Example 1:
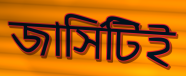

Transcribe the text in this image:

জার্সিটিই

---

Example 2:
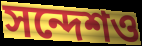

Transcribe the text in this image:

সন্দেশও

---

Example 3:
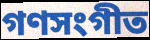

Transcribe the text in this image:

গণসংগীত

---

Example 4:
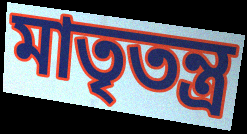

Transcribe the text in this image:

মাতৃতন্ত্র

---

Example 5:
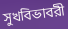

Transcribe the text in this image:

সুখবিভাবরী